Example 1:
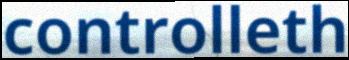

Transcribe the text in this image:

controlleth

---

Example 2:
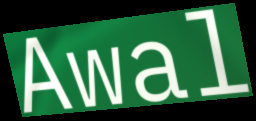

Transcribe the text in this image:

Awal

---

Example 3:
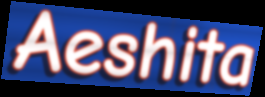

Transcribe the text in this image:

Aeshita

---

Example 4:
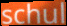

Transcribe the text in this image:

schul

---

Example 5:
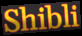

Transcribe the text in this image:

Shibli